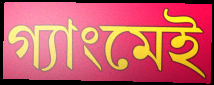
গ্যাংমেই